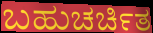
ಬಹುಚರ್ಚಿತ